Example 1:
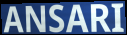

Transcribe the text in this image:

ANSARI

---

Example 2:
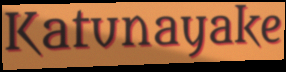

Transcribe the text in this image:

Katunayake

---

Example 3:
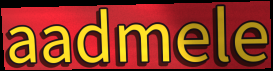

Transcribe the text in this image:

aadmele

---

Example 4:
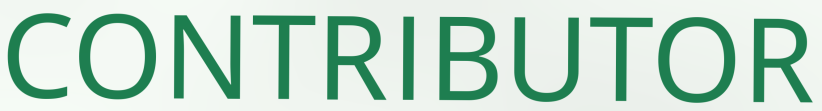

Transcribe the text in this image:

CONTRIBUTOR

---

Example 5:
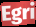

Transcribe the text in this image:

Egri